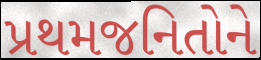
પ્રથમજનિતોને